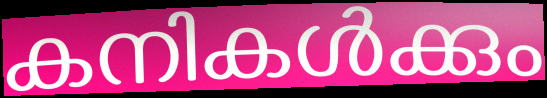
കനികൾക്കും